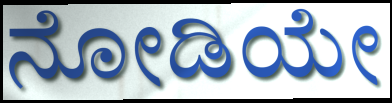
ನೋಡಿಯೇ